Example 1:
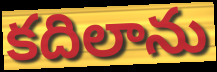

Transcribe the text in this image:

కదిలాను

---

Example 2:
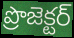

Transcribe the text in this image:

ప్రొజెక్టర్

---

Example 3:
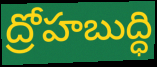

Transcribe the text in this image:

ద్రోహబుద్ధి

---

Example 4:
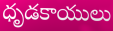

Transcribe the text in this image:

ధృడకాయులు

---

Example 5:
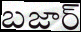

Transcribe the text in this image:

బజార్